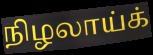
நிழலாய்க்